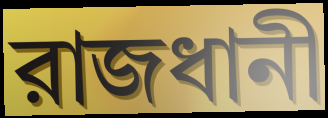
রাজধানী